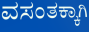
ವಸಂತಕ್ಕಾಗಿ